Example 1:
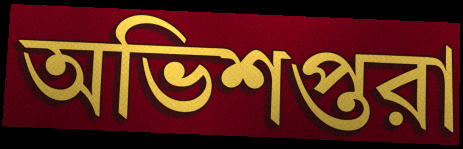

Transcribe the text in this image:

অভিশপ্তরা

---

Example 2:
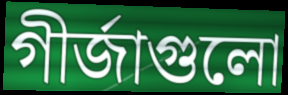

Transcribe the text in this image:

গীর্জাগুলো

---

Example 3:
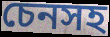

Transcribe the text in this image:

চেনসহ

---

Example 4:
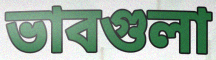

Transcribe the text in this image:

ভাবগুলা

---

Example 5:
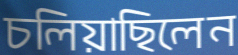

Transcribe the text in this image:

চলিয়াছিলেন